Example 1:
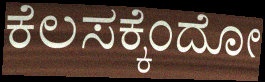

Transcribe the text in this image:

ಕೆಲಸಕ್ಕೆಂದೋ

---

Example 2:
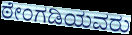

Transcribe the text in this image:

ಠೇಂಗಡಿಯವರು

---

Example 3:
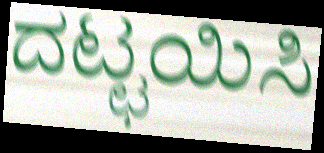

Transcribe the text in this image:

ದಟ್ಟಯಿಸಿ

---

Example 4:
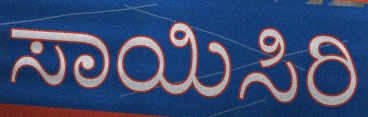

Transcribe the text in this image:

ಸಾಯಿಸಿರಿ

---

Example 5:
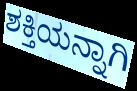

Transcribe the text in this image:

ಶಕ್ತಿಯನ್ನಾಗಿ